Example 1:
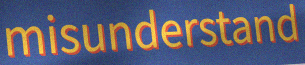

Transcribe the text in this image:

misunderstand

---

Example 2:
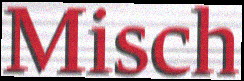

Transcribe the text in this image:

Misch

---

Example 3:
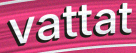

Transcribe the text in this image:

vattat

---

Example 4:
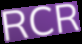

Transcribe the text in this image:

RCR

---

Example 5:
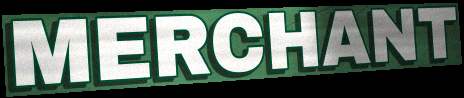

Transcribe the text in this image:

MERCHANT